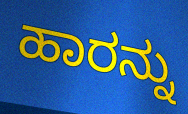
ಹಾರನ್ನು